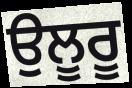
ਉਲੂਰੂ